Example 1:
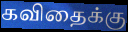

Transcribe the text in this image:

கவிதைக்கு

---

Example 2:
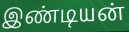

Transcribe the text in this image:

இண்டியன்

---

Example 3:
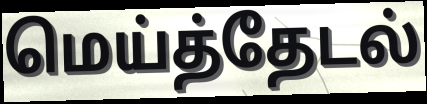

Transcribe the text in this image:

மெய்த்தேடல்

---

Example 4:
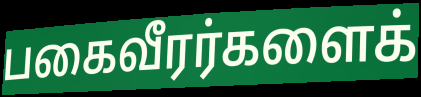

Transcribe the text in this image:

பகைவீரர்களைக்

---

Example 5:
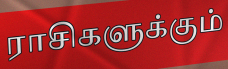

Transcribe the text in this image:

ராசிகளுக்கும்